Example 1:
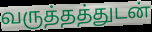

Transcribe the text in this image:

வருத்தத்துடன்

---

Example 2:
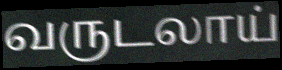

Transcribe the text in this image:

வருடலாய்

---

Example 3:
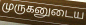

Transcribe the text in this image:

முருகனுடைய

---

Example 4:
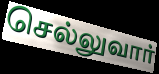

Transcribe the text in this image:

செல்லுவார்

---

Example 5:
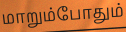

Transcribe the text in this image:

மாறும்போதும்